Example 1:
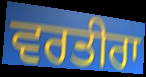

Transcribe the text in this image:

ਵਰਤੀਰਾ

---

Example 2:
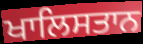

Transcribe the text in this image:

ਖਾਲਿਸਤਾਨ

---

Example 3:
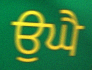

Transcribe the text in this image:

ਉਘੈ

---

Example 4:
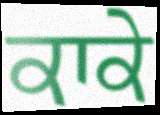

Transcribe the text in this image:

ਕਾਕੇ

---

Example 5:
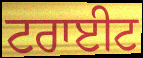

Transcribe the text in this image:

ਟਰਾਈਟ